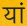
यां